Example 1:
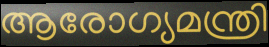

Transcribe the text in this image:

ആരോഗ്യമന്ത്രി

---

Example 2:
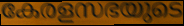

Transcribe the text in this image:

കേരളസഭയുടെ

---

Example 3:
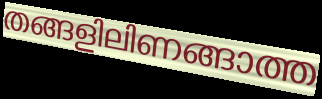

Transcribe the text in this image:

തങ്ങളിലിണങ്ങാത്ത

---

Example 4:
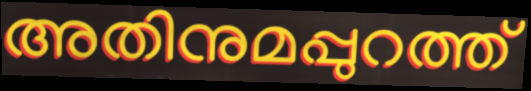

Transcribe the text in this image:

അതിനുമപ്പുറത്ത്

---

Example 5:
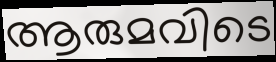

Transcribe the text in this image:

ആരുമവിടെ